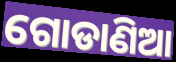
ଗୋଡାଣିଆ